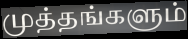
முத்தங்களும்